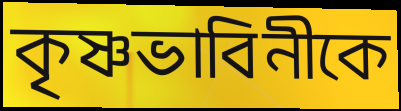
কৃষ্ণভাবিনীকে